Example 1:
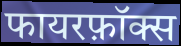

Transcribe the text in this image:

फायरफ़ॉक्स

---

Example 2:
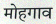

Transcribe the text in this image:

मोहगाव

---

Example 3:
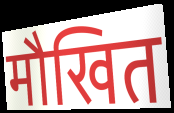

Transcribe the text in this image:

मौखित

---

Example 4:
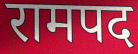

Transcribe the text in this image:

रामपद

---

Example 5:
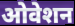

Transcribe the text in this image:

ओवेशन